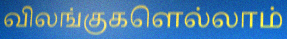
விலங்குகளெல்லாம்